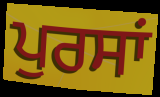
ਪੁਰਸਾਂ